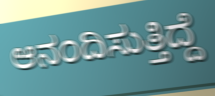
ಆನಂದಿಸುತ್ತಿದ್ದೆ